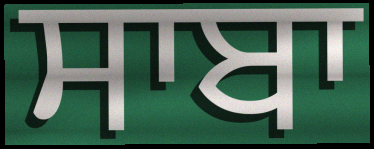
ਸਾਬਾ